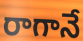
రాగానే